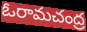
ఓరామచంద్ర